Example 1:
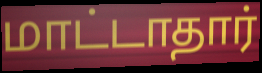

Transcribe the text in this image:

மாட்டாதார்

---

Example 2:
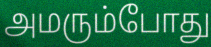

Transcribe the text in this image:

அமரும்போது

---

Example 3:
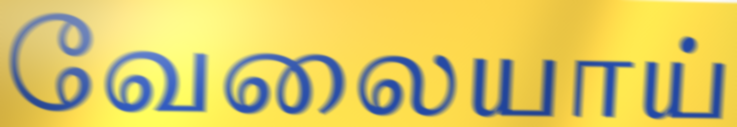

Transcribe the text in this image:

வேலையாய்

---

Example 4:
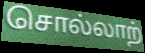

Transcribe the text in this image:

சொல்லாற்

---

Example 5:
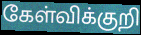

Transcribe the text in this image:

கேள்விக்குறி